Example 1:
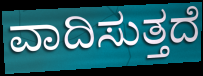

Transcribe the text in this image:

ವಾದಿಸುತ್ತದೆ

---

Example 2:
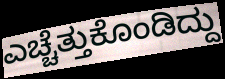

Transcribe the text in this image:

ಎಚ್ಚೆತ್ತುಕೊಂಡಿದ್ದು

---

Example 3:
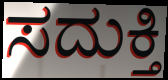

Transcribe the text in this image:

ಸದುಕ್ತಿ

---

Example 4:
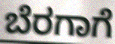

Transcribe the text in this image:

ಬೆರಗಾಗೆ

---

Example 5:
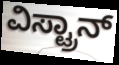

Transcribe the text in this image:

ವಿಸ್ಟ್ರಾನ್